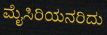
ಮೈಸಿರಿಯನರಿದು